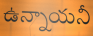
ఉన్నాయనీ